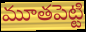
మూతపెట్టి